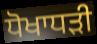
ਧੋਖਾਧਡ਼ੀ